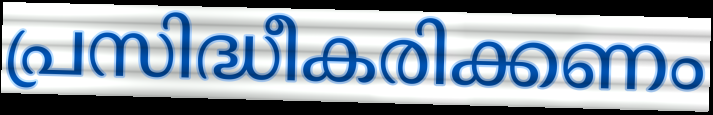
പ്രസിദ്ധീകരിക്കണം